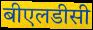
बीएलडीसी